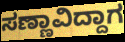
ಸಣ್ಣಾವಿದ್ದಾಗ